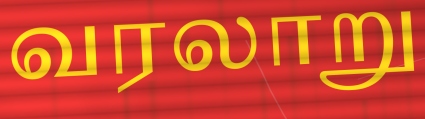
வரலாறு